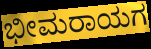
ಭೀಮರಾಯಗ